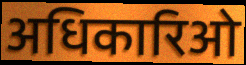
अधिकारिओ